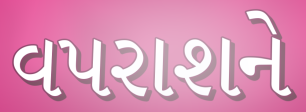
વપરાશને